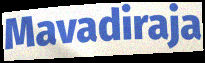
Mavadiraja